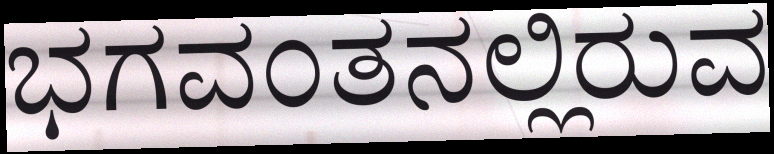
ಭಗವಂತನಲ್ಲಿರುವ